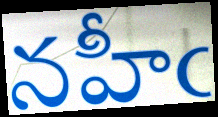
నహీఁ